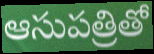
ఆసుపత్రితో